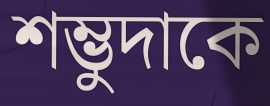
শম্ভুদাকে